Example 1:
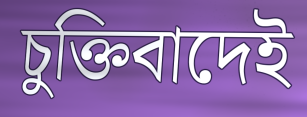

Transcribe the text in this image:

চুক্তিবাদেই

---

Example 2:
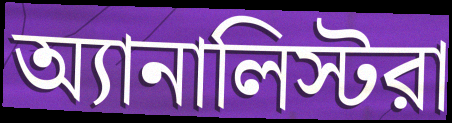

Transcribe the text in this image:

অ্যানালিস্টরা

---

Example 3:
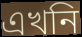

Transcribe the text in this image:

এখনি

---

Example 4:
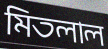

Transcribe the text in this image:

মিতলাল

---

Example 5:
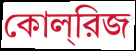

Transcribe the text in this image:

কোল্‌রিজ